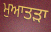
ਮੁਆਤੜਾ